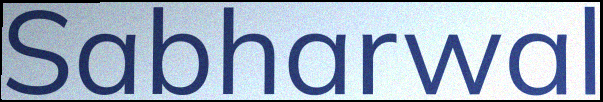
Sabharwal